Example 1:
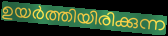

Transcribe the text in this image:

ഉയർത്തിയിരിക്കുന്ന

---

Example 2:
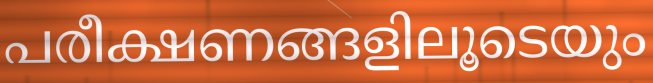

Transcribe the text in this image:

പരീക്ഷണങ്ങളിലൂടെയും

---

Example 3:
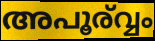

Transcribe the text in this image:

അപൂര്വ്വം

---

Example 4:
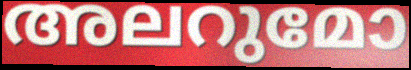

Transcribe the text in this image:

അലറുമോ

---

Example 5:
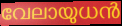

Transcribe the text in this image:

വേലായുധൻ